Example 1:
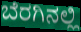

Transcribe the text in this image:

ಬೆರಗಿನಲ್ಲಿ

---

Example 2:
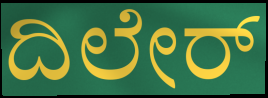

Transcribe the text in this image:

ದಿಲೇರ್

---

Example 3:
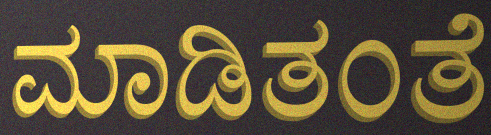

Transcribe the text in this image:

ಮಾಡಿತಂತೆ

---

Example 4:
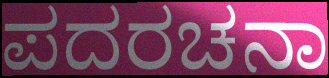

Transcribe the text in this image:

ಪದರಚನಾ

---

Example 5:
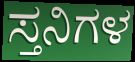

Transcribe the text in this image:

ಸ್ತನಿಗಳ